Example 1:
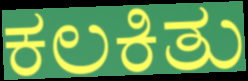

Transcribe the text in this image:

ಕಲಕಿತು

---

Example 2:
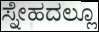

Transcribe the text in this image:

ಸ್ನೇಹದಲ್ಲೂ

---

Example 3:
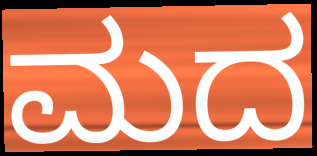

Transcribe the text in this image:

ಮದ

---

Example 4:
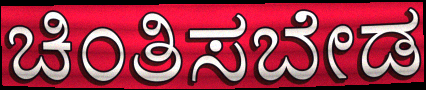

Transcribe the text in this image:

ಚಿಂತಿಸಬೇಡ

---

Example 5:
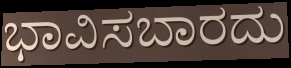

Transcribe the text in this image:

ಭಾವಿಸಬಾರದು